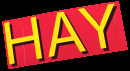
HAY